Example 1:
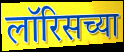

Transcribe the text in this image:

लॉरिसच्या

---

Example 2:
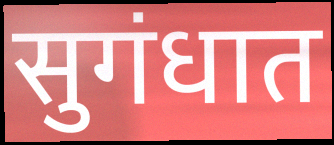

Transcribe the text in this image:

सुगंधात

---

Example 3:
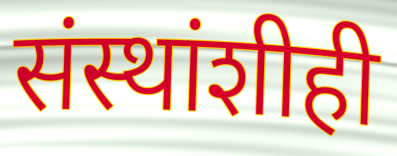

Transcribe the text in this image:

संस्थांशीही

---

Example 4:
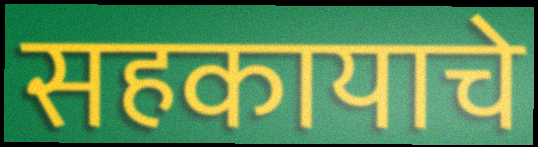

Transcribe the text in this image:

सहकायाचे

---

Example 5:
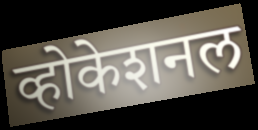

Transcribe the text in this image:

व्होकेशनल